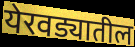
येरवड्यातील